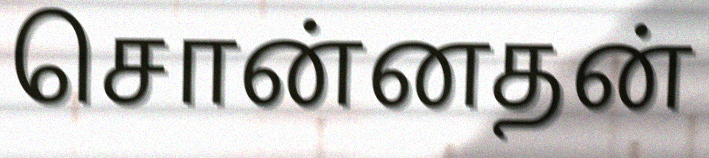
சொன்னதன்